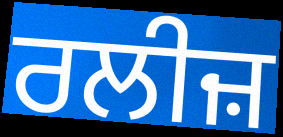
ਰਲੀਜ਼